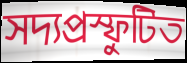
সদ্যপ্রস্ফুটিত